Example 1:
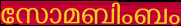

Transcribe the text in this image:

സോമബിംബം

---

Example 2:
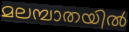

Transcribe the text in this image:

മലമ്പാതയിൽ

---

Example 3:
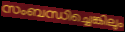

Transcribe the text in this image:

സംബന്ധിച്ചെങ്കിലും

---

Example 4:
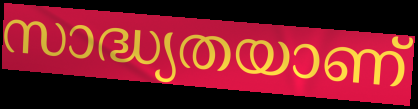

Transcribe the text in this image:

സാദ്ധ്യതയാണ്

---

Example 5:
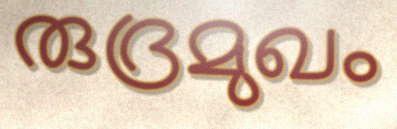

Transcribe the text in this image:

രുദ്രമുഖം